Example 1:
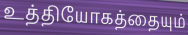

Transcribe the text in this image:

உத்தியோகத்தையும்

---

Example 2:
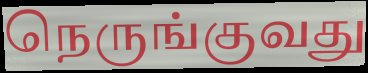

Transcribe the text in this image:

நெருங்குவது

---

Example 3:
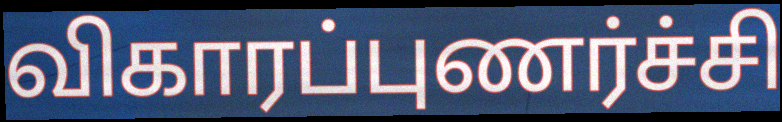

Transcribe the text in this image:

விகாரப்புணர்ச்சி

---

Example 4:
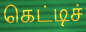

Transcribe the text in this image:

கெட்டிச்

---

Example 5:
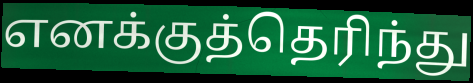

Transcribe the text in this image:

எனக்குத்தெரிந்து